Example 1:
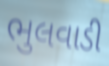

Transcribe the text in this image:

ભુલવાડી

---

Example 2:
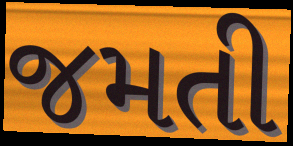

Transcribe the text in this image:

જમતી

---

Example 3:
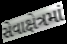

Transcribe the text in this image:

સેવાક્ષેત્રમાં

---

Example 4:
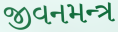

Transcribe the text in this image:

જીવનમન્ત્ર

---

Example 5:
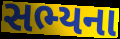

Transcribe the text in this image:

સભ્યના